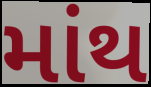
માંથ